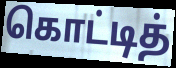
கொட்டித்